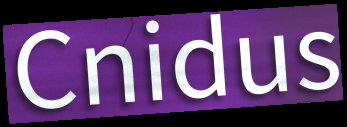
Cnidus